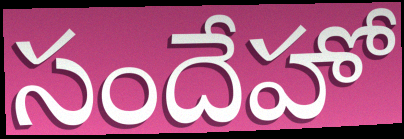
సందేహో